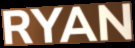
RYAN